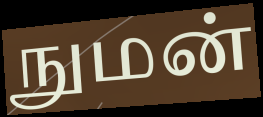
நுமன்